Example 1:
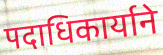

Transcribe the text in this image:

पदाधिकार्याने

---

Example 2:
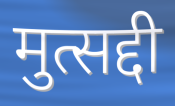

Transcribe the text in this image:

मुत्सद्दी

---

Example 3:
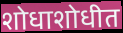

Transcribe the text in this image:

शोधाशोधीत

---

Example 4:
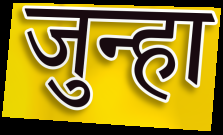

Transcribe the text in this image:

जुन्हा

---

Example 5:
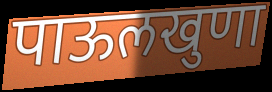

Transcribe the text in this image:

पाऊलखुणा